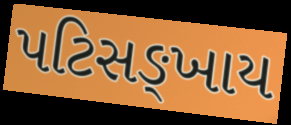
પટિસઙ્ખાય